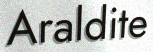
Araldite